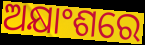
ଅକ୍ଷାଂଶରେ